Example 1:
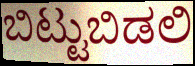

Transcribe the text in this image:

ಬಿಟ್ಟುಬಿಡಲಿ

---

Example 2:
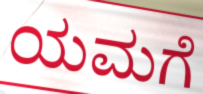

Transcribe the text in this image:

ಯಮಗೆ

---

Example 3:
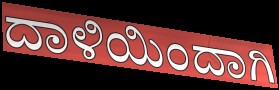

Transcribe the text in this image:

ದಾಳಿಯಿಂದಾಗಿ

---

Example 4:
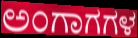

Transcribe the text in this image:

ಅಂಗಾಗಗಳ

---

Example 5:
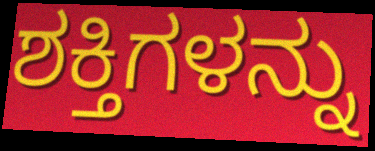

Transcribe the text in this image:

ಶಕ್ತಿಗಳನ್ನು